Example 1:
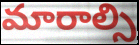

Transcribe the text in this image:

మారాల్సి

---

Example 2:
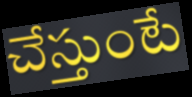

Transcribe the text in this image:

చేస్తుంటే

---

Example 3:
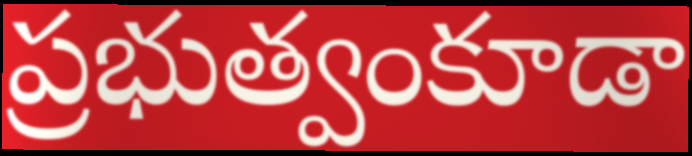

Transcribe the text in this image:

ప్రభుత్వంకూడా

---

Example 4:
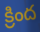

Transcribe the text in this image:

క్రింద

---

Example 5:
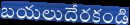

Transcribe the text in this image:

బయలుదేరకండి